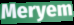
Meryem